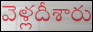
వెళ్లదీశారు